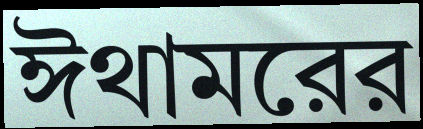
ঈথামরের